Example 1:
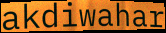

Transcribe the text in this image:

akdiwahar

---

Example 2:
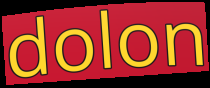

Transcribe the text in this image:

dolon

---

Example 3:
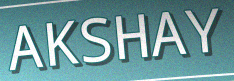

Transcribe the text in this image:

AKSHAY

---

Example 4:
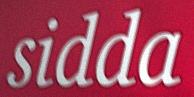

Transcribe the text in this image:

sidda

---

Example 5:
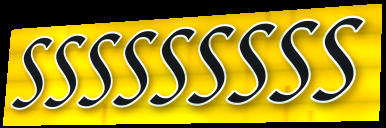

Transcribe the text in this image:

sssssssss